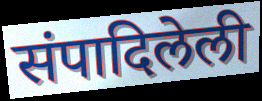
संपादिलेली